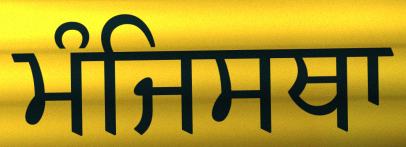
ਮੰਜਿਸਥਾ